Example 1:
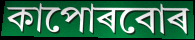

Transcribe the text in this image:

কাপোৰবোৰ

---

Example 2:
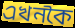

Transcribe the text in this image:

এখনকৈ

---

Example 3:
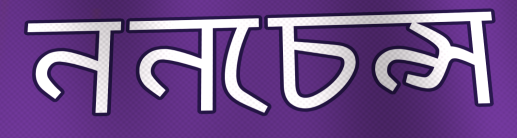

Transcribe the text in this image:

ননচেন্স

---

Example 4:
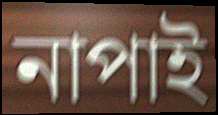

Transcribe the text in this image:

নাপাই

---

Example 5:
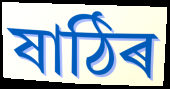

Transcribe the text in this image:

ষাঠিৰ